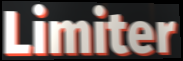
Limiter